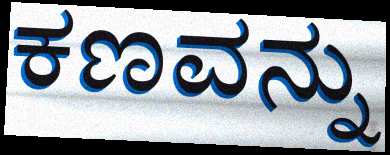
ಕಣವನ್ನು